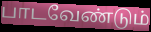
பாடவேண்டும்